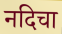
नदिचा